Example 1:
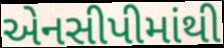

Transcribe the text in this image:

એનસીપીમાંથી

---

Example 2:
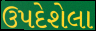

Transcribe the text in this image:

ઉપદેશેલા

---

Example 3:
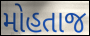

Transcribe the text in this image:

મોહતાજ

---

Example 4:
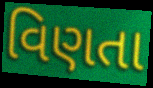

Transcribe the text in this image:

વિણતા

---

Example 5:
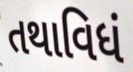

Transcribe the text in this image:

તથાવિધં